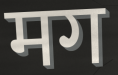
मग